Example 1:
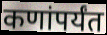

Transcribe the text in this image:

कणांपर्यंत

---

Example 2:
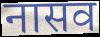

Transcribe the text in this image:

नासव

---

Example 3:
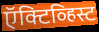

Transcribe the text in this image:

ऍक्टिव्हिस्ट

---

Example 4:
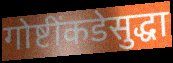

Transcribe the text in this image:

गोष्टींकडेसुद्धा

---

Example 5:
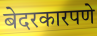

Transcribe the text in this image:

बेदरकारपणे